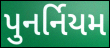
પુનર્નિયમ